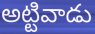
అట్టివాడు